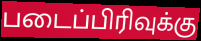
படைப்பிரிவுக்கு